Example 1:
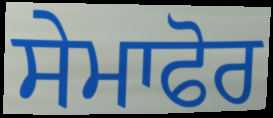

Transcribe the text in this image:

ਸੇਮਾਫੋਰ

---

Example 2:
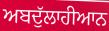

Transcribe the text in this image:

ਅਬਦੁੱਲਾਹੀਆਨ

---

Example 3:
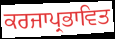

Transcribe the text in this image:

ਕਰਜਾਪ੍ਰਭਾਵਿਤ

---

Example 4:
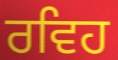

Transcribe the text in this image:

ਰਵਿਹ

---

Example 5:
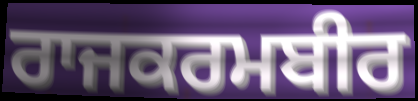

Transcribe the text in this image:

ਰਾਜਕਰਮਬੀਰ